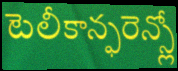
టెలీకాన్ఫరెన్స్లో